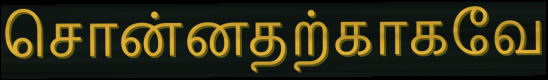
சொன்னதற்காகவே